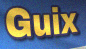
Guix